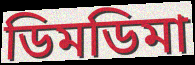
ডিমডিমা